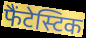
फैंटेस्टिक